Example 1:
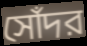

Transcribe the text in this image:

সোঁদর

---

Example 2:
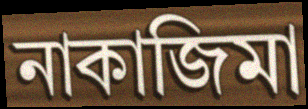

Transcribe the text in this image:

নাকাজিমা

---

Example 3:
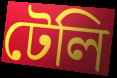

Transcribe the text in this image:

টেলি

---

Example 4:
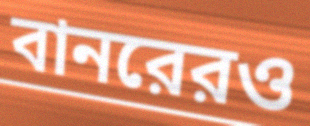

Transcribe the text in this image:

বানরেরও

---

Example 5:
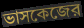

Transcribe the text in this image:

ভাসকেজের